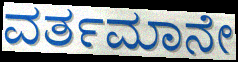
ವರ್ತಮಾನೇ